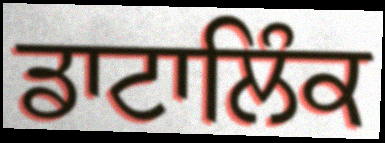
ਡਾਟਾਲਿੰਕ